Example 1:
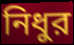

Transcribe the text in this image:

নিধুর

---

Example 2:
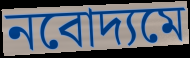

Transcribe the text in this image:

নবোদ্যমে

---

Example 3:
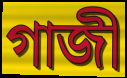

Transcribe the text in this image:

গাজী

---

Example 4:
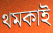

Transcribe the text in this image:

থমকাই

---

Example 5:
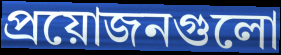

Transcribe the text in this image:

প্রয়োজনগুলো